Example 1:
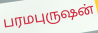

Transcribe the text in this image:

பரமபுருஷன்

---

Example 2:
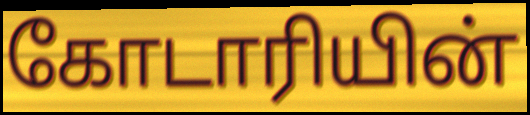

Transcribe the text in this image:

கோடாரியின்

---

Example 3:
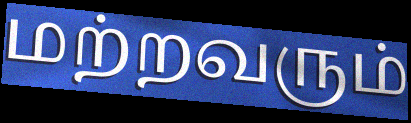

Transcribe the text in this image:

மற்றவரும்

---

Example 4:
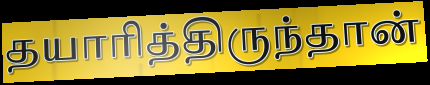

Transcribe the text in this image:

தயாரித்திருந்தான்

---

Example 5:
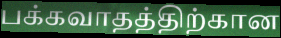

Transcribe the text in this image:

பக்கவாதத்திற்கான